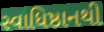
સ્વાધિષ્ઠાનથી